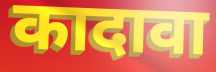
कादावा